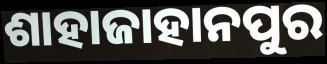
ଶାହାଜାହାନପୁର